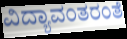
ವಿದ್ಯಾವಂತರಂತೆ